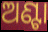
ଅଣ୍ଟା